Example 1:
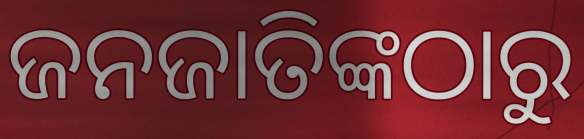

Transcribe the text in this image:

ଜନଜାତିଙ୍କଠାରୁ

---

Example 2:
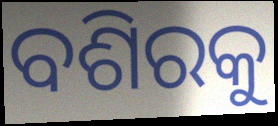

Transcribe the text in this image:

ବଶିରକୁ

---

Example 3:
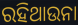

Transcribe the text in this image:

ରହିଥାଉନା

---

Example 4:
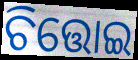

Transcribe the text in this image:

ଚିତ୍ତୋଇ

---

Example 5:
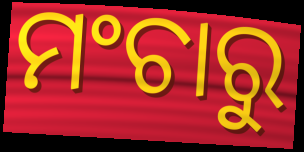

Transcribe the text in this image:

ମଂଚାରୁ